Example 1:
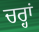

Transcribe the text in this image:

ਚਰ੍ਹਾਂ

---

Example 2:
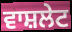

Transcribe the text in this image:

ਵਾਸ਼ਲੇਟ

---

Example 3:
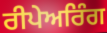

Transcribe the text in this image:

ਰੀਪੇਅਰਿੰਗ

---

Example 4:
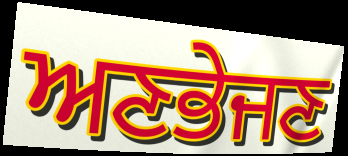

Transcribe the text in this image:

ਅਣਭੇਜਣ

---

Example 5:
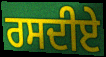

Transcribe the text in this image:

ਰਸਦੀਏ